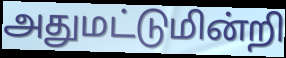
அதுமட்டுமின்றி